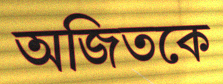
অজিতকে